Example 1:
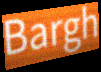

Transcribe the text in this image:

Bargh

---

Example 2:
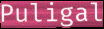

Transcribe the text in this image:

Puligal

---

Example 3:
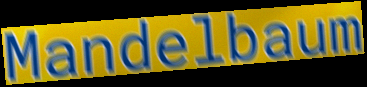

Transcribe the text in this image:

Mandelbaum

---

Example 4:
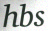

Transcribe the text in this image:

hbs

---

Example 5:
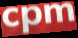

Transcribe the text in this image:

cpm